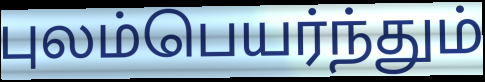
புலம்பெயர்ந்தும்